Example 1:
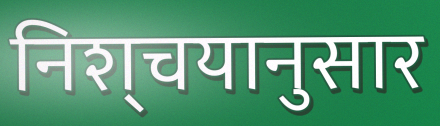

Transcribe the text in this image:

निश्चयानुसार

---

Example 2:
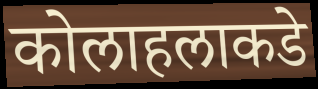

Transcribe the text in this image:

कोलाहलाकडे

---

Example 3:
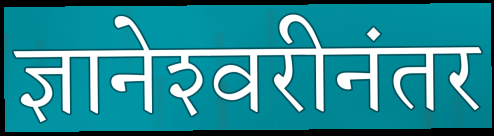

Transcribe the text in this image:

ज्ञानेश्वरीनंतर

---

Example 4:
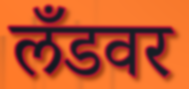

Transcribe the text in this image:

लँडवर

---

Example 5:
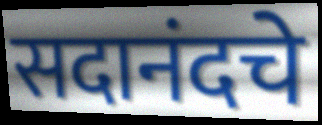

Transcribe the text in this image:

सदानंदचे